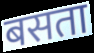
बसता